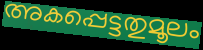
അകപ്പെട്ടതുമൂലം